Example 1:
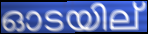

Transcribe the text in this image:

ഓടയില്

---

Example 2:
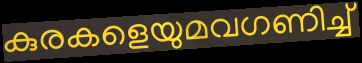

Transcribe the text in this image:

കുരകളെയുമവഗണിച്ച്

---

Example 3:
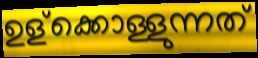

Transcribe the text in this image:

ഉള്ക്കൊള്ളുന്നത്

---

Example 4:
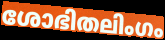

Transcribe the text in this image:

ശോഭിതലിംഗം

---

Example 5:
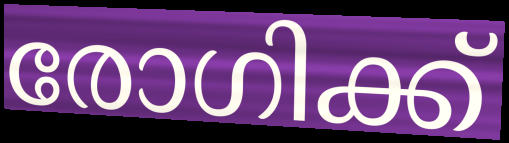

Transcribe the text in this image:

രോഗിക്ക്